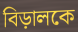
বিড়ালকে